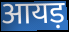
आयड़